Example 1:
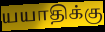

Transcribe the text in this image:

யயாதிக்கு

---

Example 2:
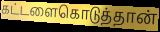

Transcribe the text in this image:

கட்டளைகொடுத்தான்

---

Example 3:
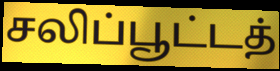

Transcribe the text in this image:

சலிப்பூட்டத்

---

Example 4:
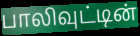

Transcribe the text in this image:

பாலிவுட்டின்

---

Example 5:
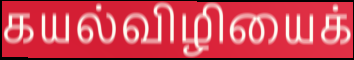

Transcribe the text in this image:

கயல்விழியைக்